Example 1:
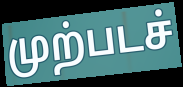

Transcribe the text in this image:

முற்படச்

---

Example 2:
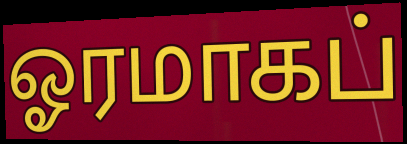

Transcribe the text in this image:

ஓரமாகப்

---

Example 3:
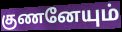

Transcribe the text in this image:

குணனேயும்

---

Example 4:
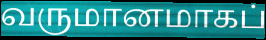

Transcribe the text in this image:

வருமானமாகப்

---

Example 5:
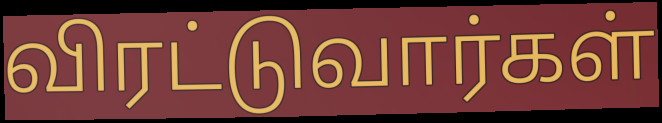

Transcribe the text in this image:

விரட்டுவார்கள்